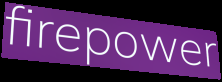
firepower